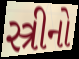
સ્ત્રીનો